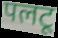
पलटू